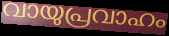
വായുപ്രവാഹം